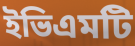
ইভিএমটি